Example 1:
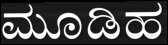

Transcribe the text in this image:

ಮೂಡಿಹ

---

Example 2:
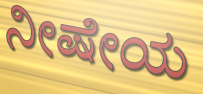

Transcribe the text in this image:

ನೀಷೇಯ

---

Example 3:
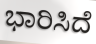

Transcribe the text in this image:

ಭಾರಿಸಿದೆ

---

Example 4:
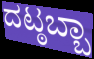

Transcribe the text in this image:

ದಟ್ಠಬ್ಬಾ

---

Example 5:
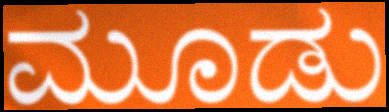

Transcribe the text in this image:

ಮೂಡು